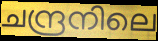
ചന്ദ്രനിലെ